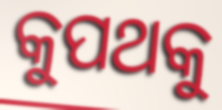
କୁପଥକୁ